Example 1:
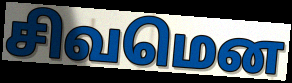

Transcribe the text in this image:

சிவமென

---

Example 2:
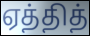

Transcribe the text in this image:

ஏத்தித்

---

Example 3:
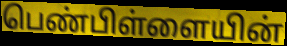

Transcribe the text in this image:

பெண்பிள்ளையின்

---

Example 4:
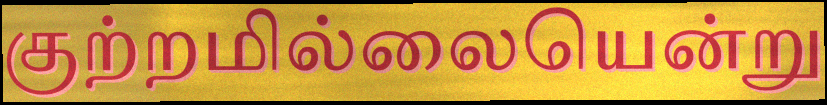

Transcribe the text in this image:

குற்றமில்லையென்று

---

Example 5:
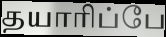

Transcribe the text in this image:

தயாரிப்பே